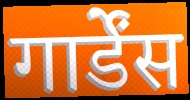
गार्डेंस